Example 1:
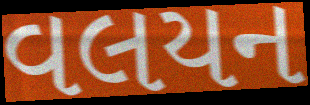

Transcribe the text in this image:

વલયન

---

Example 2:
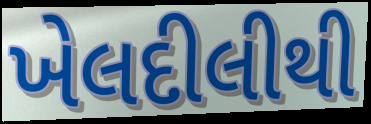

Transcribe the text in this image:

ખેલદીલીથી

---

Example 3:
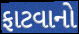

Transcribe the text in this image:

ફાટવાનો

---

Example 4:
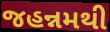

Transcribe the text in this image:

જહન્નમથી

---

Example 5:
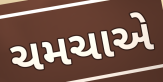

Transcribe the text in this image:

ચમચાએ